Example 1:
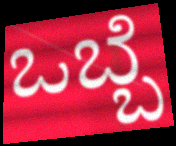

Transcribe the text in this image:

ಒಬ್ಬೆ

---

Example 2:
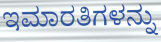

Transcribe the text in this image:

ಇಮಾರತಿಗಳನ್ನು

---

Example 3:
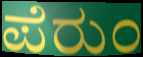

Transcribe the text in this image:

ಪೆರುಂ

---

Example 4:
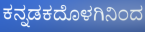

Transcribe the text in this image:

ಕನ್ನಡಕದೊಳಗಿನಿಂದ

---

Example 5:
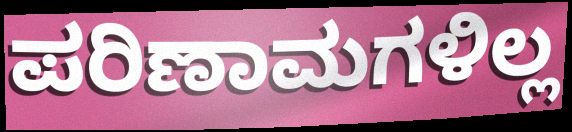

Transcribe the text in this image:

ಪರಿಣಾಮಗಳಿಲ್ಲ